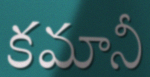
కమానీ